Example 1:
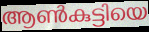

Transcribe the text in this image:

ആൺകുട്ടിയെ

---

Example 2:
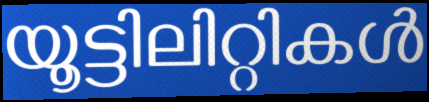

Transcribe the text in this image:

യൂട്ടിലിറ്റികൾ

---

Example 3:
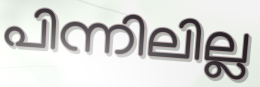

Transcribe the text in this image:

പിന്നിലില്ല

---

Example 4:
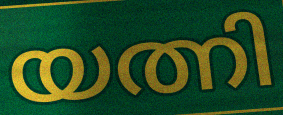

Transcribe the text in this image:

യത്നി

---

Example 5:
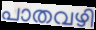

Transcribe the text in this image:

പാതവഴി